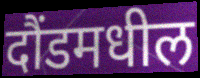
दौंडमधील